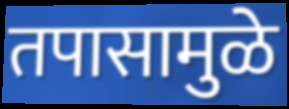
तपासामुळे